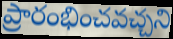
ప్రారంభించవచ్చని